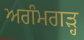
ਅਗੰਮਗੜ੍ਹ